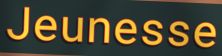
Jeunesse